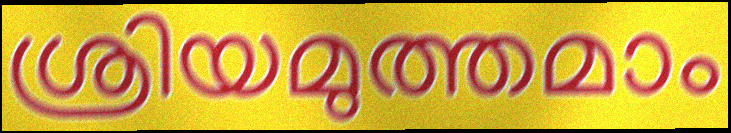
ശ്രിയമുത്തമാം